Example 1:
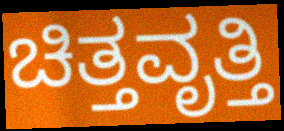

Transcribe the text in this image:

ಚಿತ್ತವೃತ್ತಿ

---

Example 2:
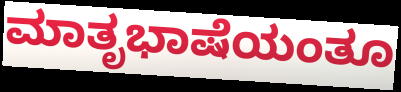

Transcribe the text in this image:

ಮಾತೃಭಾಷೆಯಂತೂ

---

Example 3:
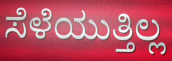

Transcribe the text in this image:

ಸೆಳೆಯುತ್ತಿಲ್ಲ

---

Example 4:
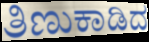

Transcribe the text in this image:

ತಿಣುಕಾಡಿದ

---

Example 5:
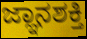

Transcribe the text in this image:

ಜ್ಞಾನಶಕ್ತಿ